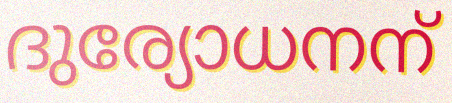
ദുര്യോധനന്